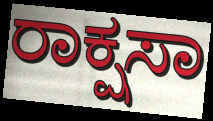
ರಾಕ್ಷಸಾ